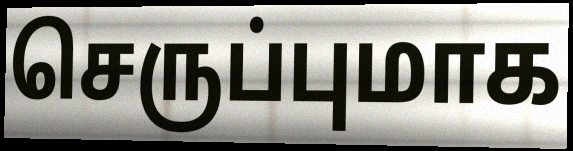
செருப்புமாக